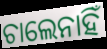
ଚାଲେନାହିଁ